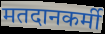
मतदानकर्मी